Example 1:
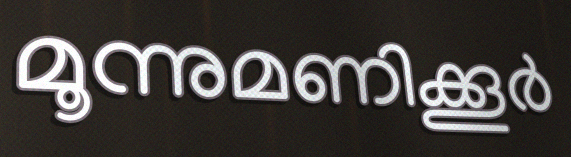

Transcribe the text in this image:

മൂന്നുമണിക്കൂർ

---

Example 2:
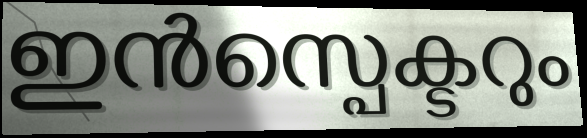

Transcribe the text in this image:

ഇൻസ്പെക്ടറും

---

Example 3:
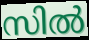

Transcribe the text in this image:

സിൽ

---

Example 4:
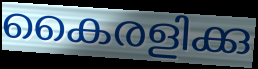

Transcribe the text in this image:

കൈരളിക്കു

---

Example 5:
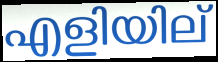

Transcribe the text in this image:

എളിയില്